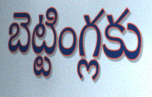
బెట్టింగ్లకు